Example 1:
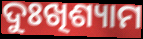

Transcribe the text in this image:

ଦୁଃଖିଶ୍ୟାମ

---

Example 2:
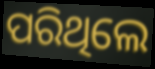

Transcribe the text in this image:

ପରିଥିଲେ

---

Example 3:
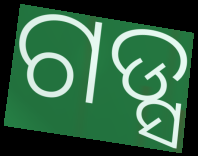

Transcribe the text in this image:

ଗଡ୍ସ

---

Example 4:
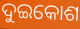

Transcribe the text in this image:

ଦୁଇକୋଶ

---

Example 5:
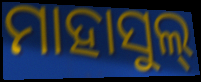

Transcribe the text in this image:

ମାହାସୁଲ୍